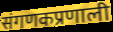
संगणकप्रणाली